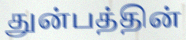
துன்பத்தின்